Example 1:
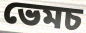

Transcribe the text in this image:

ভেমচ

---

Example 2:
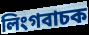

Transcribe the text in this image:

লিংগবাচক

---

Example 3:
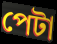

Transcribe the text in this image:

পেটা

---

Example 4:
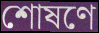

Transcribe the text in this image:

শোষণে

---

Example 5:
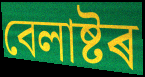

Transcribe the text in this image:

বেলাষ্টৰ